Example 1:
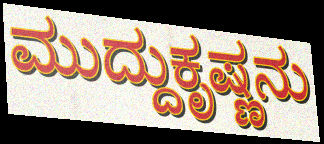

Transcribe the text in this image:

ಮುದ್ದುಕೃಷ್ಣನು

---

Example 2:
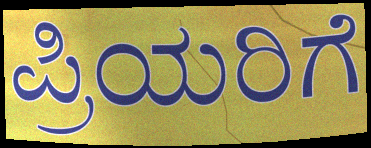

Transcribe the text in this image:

ಪ್ರಿಯರಿಗೆ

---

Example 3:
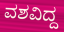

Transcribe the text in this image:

ವಶವಿದ್ದ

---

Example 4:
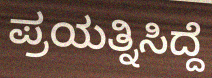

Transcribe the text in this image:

ಪ್ರಯತ್ನಿಸಿದ್ದೆ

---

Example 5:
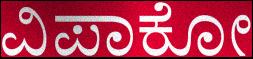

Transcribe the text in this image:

ವಿಪಾಕೋ